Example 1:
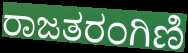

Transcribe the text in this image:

ರಾಜತರಂಗಿಣಿ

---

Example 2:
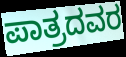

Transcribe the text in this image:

ಪಾತ್ರದವರ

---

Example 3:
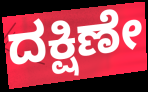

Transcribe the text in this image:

ದಕ್ಷಿಣೇ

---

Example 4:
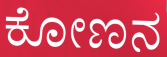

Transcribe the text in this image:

ಕೋಣನ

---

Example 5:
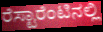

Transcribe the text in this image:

ರೆಸ್ಟಾರೆಂಟಿನಲ್ಲಿ